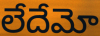
లేదేమో